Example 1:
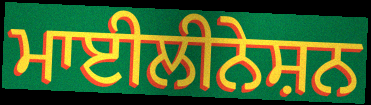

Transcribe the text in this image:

ਮਾਈਲੀਨੇਸ਼ਨ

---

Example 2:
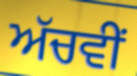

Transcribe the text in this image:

ਅੱਚਵੀਂ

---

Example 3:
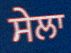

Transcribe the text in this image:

ਸੇਲਾ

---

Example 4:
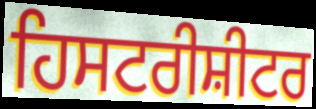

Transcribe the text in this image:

ਹਿਸਟਰੀਸ਼ੀਟਰ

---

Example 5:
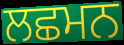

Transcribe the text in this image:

ਲਛਮਨ